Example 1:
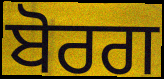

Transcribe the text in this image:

ਬੋਰਗ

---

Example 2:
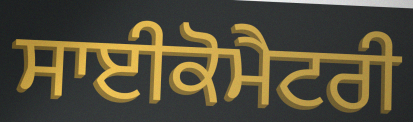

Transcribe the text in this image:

ਸਾਈਕੋਮੈਟਰੀ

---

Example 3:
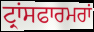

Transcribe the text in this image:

ਟ੍ਰਾਂਸਫਾਰਮਰਾਂ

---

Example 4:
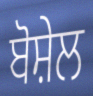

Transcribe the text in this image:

ਬੋਸ਼ੇਲ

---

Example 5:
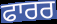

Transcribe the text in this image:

ਫਾਰਰ